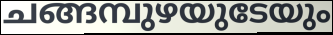
ചങ്ങമ്പുഴയുടേയും